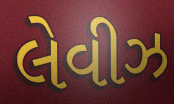
લેવીઝ